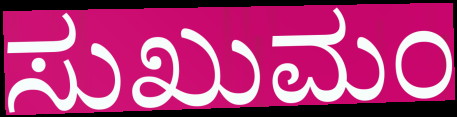
ಸುಖುಮಂ